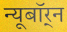
न्यूबॉर्न